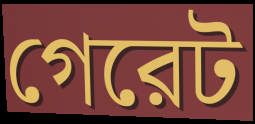
গেরেট